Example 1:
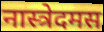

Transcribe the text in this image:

नास्त्रेदमस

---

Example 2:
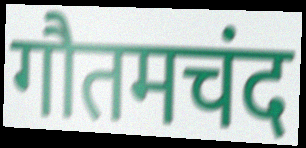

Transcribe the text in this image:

गौतमचंद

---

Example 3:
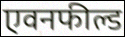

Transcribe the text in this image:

एवनफील्ड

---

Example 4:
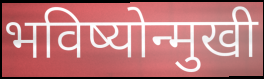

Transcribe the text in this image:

भविष्योन्मुखी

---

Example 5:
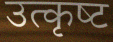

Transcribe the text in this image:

उत्कृष्‍ट